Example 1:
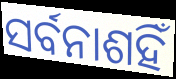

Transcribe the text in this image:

ସର୍ବନାଶହିଁ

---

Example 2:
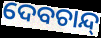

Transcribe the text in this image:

ଦେବଚାନ୍ଦ୍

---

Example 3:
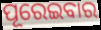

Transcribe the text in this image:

ପୂରେଇବାର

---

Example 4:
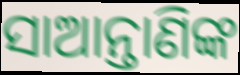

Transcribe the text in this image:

ସାଆନ୍ତାଣିଙ୍କ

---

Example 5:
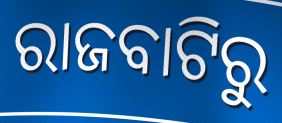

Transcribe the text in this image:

ରାଜବାଟିରୁ